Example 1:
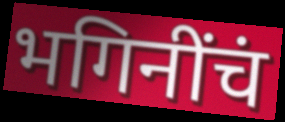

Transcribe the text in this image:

भगिनींचं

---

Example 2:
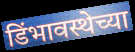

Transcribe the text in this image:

डिंभावस्थेच्या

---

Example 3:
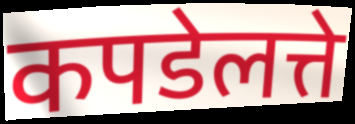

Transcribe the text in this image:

कपडेलत्ते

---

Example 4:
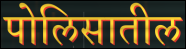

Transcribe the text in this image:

पोलिसातील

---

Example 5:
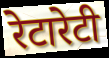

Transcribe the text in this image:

रेटारेटी